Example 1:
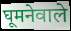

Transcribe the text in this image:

घूमनेवाले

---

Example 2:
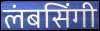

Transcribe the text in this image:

लंबसिंगी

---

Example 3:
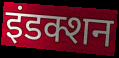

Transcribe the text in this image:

इंडक्शन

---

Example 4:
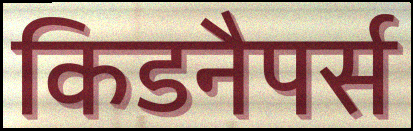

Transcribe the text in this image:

किडनैपर्स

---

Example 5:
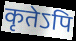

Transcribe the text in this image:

कृतेऽपि